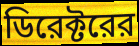
ডিরেক্টরের